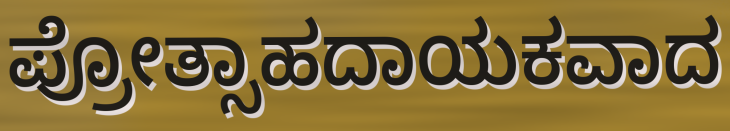
ಪ್ರೋತ್ಸಾಹದಾಯಕವಾದ